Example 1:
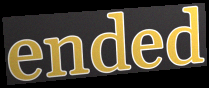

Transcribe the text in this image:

ended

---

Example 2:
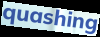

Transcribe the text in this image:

quashing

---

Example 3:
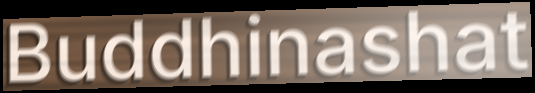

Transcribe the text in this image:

Buddhinashat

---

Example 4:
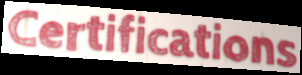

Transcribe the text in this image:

Certifications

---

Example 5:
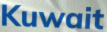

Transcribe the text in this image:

Kuwait